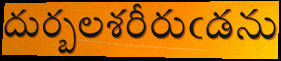
దుర్బలశరీరుఁడను